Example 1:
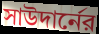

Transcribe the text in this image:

সাউদার্নের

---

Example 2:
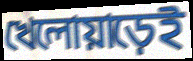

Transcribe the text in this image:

খেলোয়াড়েই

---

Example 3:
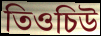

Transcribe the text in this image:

তিওচিউ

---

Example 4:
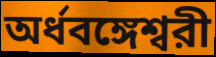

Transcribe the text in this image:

অর্ধবঙ্গেশ্বরী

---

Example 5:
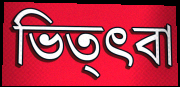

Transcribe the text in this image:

ভিত্ৎবা